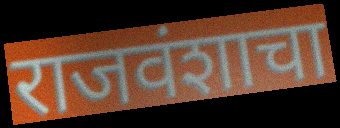
राजवंशाचा